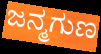
ಜನ್ಮಗುಣ